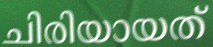
ചിരിയായത്